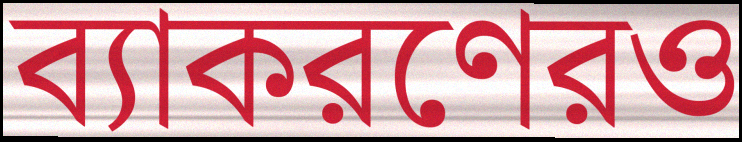
ব্যাকরণেরও